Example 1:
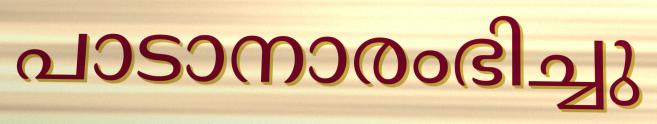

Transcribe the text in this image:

പാടാനാരംഭിച്ചു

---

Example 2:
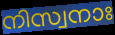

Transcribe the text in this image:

നിസ്വനാഃ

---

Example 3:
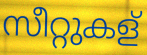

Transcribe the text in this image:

സീറ്റുകള്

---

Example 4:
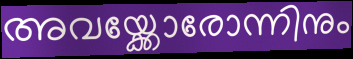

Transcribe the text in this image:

അവയ്ക്കോരോന്നിനും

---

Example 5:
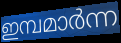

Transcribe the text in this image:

ഇമ്പമാർന്ന